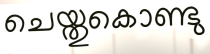
ചെയ്തുകൊണ്ടു